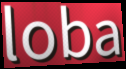
loba